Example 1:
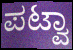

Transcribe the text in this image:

ಪಟ್ವಾ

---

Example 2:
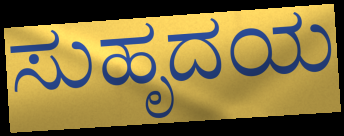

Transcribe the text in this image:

ಸುಹೃದಯ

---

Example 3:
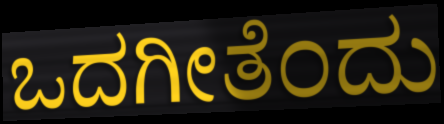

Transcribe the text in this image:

ಒದಗೀತೆಂದು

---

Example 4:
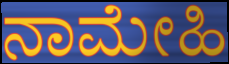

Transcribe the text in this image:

ನಾಮೇಹಿ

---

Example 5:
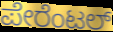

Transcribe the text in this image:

ಪೇರೆಂಟಲ್